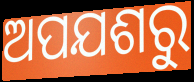
ଅପଯଶରୁ